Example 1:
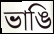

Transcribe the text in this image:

ভাঙি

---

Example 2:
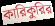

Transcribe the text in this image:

কারিকুরির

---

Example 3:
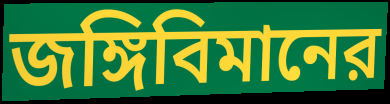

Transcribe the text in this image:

জঙ্গিবিমানের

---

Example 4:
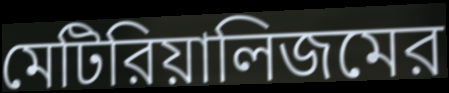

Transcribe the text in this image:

মেটিরিয়ালিজমের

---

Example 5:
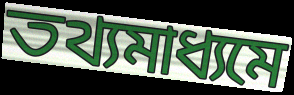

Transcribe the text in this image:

তথ্যমাধ্যমে